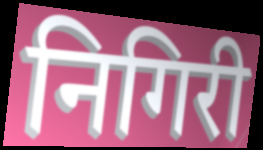
निगिरी